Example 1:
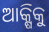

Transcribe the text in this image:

ଆକ୍ଷିକୁ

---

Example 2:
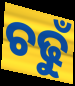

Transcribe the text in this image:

ଚଢୁଁ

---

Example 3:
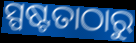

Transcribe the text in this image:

ସ୍ପଷ୍ଟତାଠାରୁ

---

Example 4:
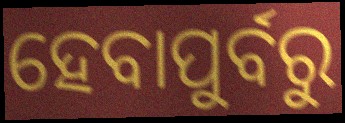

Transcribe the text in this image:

ହେବାପୁର୍ବରୁ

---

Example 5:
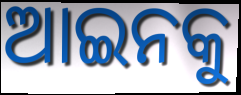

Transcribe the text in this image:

ଆଇନକୁ